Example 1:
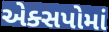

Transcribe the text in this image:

એક્સપોમાં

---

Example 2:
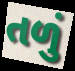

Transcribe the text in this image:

તળું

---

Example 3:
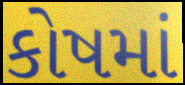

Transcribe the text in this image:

કોષમાં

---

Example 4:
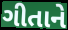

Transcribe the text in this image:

ગીતાને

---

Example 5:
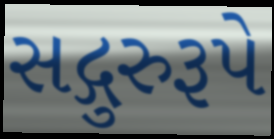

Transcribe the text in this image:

સદ્ગુરુરૂપે